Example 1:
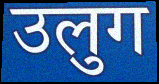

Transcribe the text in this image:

उलुग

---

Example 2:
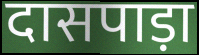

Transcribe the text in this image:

दासपाड़ा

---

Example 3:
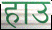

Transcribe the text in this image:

हाउ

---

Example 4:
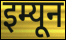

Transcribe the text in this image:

इम्यून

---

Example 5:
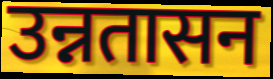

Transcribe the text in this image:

उन्नतासन